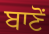
ਬਾਣੋਂ